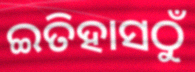
ଇତିହାସଠୁଁ